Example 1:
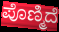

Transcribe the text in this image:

ಪೊಣ್ಮಿದೆ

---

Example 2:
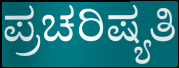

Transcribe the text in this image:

ಪ್ರಚರಿಷ್ಯತಿ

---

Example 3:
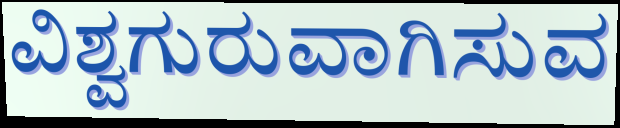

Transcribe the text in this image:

ವಿಶ್ವಗುರುವಾಗಿಸುವ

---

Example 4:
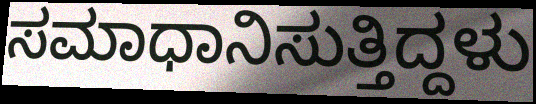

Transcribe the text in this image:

ಸಮಾಧಾನಿಸುತ್ತಿದ್ದಳು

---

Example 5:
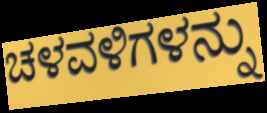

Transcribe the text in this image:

ಚಳವಳಿಗಳನ್ನು